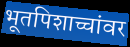
भूतपिशाच्चांवर